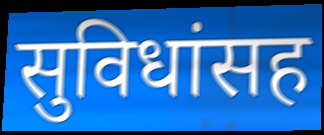
सुविधांसह